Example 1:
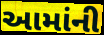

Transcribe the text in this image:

આમાંની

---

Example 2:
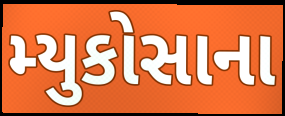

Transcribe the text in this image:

મ્યુકોસાના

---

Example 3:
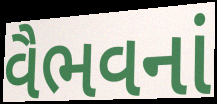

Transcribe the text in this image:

વૈભવનાં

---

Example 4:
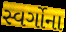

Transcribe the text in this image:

સ્વર્ગોના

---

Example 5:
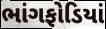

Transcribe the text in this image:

ભાંગફોડિયાં